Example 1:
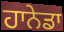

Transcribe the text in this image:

ਹਾਨੇਡਾ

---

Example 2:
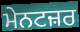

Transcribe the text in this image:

ਮੇਨਟਜ਼ਰ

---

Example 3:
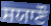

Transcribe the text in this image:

ਸਯਾਣੌ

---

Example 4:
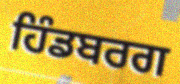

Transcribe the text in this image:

ਹਿੰਡਬਰਗ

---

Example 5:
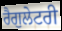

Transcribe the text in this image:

ਰੈਗੁਲੇਟਰੀ